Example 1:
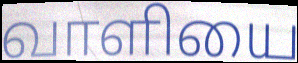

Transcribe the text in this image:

வாளியை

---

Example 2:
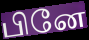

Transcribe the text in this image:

பினே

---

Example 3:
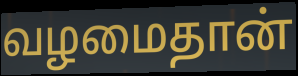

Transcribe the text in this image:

வழமைதான்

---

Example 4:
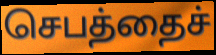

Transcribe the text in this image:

செபத்தைச்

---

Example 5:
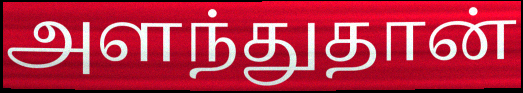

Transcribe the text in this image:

அளந்துதான்